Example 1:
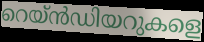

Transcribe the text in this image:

റെയ്ൻഡിയറുകളെ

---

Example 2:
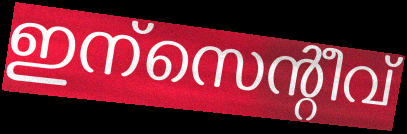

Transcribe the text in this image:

ഇന്സെന്റീവ്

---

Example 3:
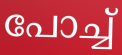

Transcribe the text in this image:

പോച്ച്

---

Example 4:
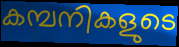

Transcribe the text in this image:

കമ്പനികളുടെ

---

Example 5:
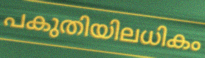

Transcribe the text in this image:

പകുതിയിലധികം